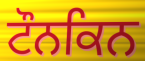
ਟੌਨਕਿਨ